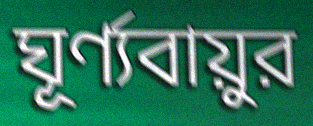
ঘূর্ণ্যবায়ুর